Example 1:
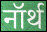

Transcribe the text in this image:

नॉर्थ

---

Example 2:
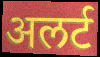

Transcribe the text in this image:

अलर्ट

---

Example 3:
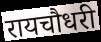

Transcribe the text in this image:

रायचौधरी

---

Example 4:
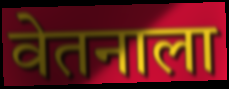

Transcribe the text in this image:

वेतनाला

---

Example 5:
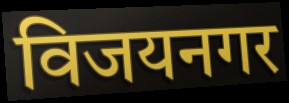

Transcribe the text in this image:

विजयनगर